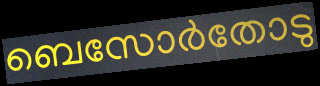
ബെസോർതോടു